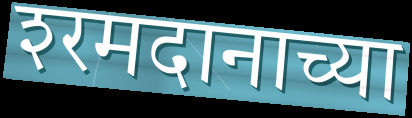
श्रमदानाच्या